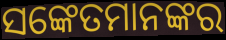
ସଙ୍କେତମାନଙ୍କର